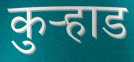
कुऱ्हाड